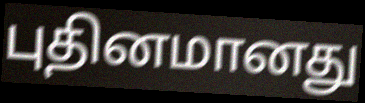
புதினமானது